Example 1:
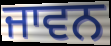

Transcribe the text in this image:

ਜਾਵਨ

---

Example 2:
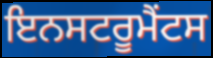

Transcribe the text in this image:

ਇਨਸਟਰੂਮੈਂਟਸ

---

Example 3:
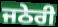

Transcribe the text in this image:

ਜਠੇਰੀ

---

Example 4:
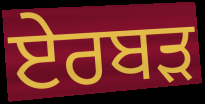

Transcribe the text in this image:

ਏਰਬੜ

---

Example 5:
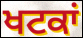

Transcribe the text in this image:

ਖਟਕਾਂ